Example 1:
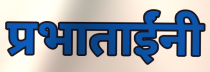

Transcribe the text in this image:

प्रभाताईंनी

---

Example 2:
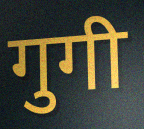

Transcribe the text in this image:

गुगी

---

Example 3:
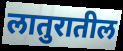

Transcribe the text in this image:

लातुरातील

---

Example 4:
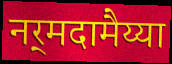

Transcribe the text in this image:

नर्मदामैय्या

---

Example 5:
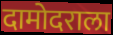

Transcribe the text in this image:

दामोदराला